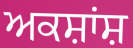
ਅਕਸ਼ਾਂਸ਼